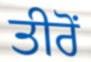
ਤੀਰੋਂ